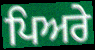
ਪਿਅਰੇ